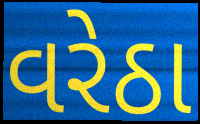
વરેઠા